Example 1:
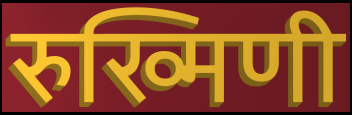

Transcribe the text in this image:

रुख्मिणी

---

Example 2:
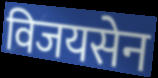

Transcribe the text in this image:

विजयसेन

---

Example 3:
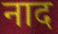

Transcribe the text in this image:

नाद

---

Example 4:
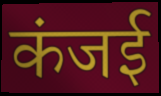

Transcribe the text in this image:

कंजई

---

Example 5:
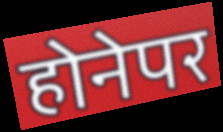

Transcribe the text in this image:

होनेपर